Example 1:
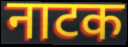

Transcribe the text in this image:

नाटक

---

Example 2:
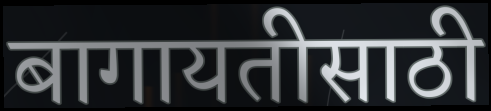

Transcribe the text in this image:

बागायतीसाठी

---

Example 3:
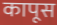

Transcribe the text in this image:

कापूस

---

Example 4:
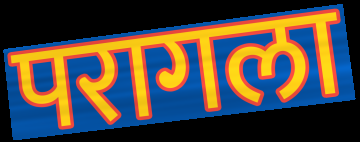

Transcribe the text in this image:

परागला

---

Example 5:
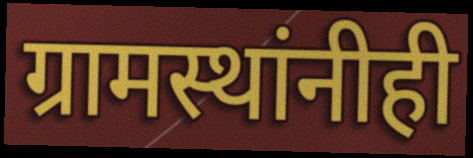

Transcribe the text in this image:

ग्रामस्थांनीही